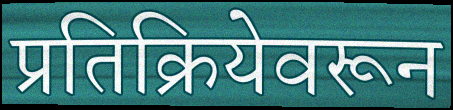
प्रतिक्रियेवरून